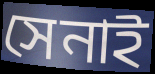
সেনাই